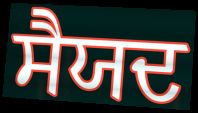
ਸੈਯਦ